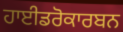
ਹਾਈਡਰੋਕਾਰਬਨ